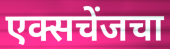
एक्सचेंजचा